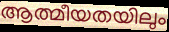
ആത്മീയതയിലും